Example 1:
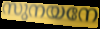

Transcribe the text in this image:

സുനയനേ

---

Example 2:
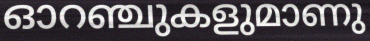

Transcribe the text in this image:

ഓറഞ്ചുകളുമാണു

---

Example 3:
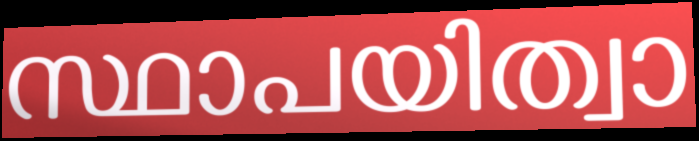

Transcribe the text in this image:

സ്ഥാപയിത്വാ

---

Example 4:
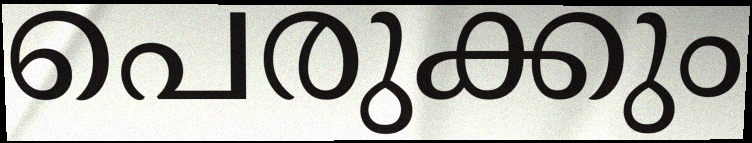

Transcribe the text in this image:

പെരുക്കും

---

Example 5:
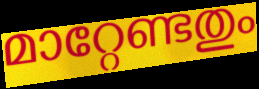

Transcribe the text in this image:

മാറ്റേണ്ടതും